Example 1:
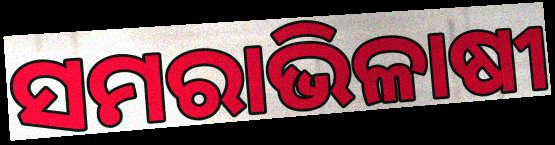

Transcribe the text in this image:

ସମରାଭିଳାଷୀ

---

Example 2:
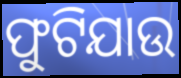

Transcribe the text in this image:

ଫୁଟିଯାଉ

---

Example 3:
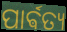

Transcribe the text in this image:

ପାର୍ଵତ୍ଯ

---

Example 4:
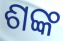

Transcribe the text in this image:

ଶଙ୍କ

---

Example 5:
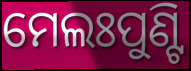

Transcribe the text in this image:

ମେଲଃପୁଣ୍ଟି